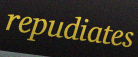
repudiates